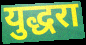
युद्धरा